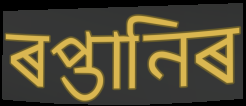
ৰপ্তানিৰ